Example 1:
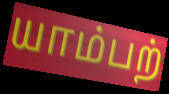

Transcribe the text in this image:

யாம்பற்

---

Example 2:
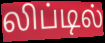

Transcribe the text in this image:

லிப்டில்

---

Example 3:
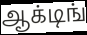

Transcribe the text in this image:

ஆக்டிங்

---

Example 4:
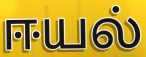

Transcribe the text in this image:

ஈயல்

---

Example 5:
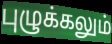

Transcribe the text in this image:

புழுக்கலும்